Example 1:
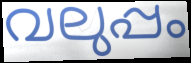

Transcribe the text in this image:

വലുപ്പം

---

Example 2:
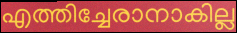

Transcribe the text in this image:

എത്തിച്ചേരാനാകില്ല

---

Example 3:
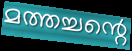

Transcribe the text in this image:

മത്തച്ചന്റെ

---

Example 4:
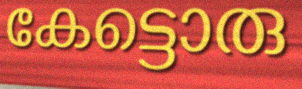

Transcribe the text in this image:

കേട്ടൊരു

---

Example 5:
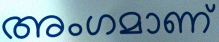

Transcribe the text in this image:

അംഗമാണ്